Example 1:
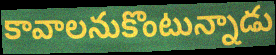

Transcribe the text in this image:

కావాలనుకొంటున్నాడు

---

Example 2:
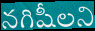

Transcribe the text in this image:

నగిషీలని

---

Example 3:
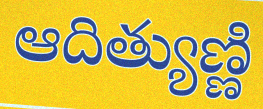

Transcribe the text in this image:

ఆదిత్యుణ్ణి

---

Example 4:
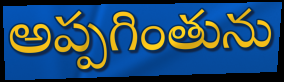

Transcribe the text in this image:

అప్పగింతును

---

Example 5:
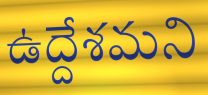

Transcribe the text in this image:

ఉద్దేశమని